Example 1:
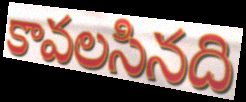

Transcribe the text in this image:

కావలసినది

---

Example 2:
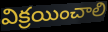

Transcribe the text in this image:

విక్రయించాలి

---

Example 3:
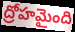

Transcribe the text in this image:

ద్రోహమైంది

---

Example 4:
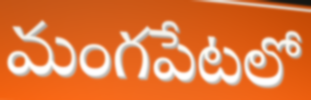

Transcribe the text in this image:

మంగపేటలో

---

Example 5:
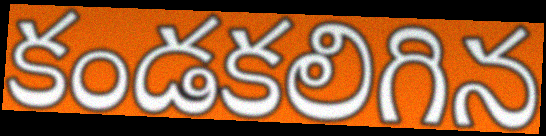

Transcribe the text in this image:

కండకలిగిన